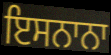
ਇਸਨਾਨਾ